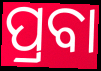
ପ୍ରବା